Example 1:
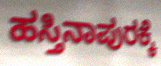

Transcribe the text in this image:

ಹಸ್ತಿನಾಪುರಕ್ಕೆ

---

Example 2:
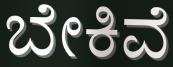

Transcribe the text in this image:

ಬೇಕಿವೆ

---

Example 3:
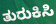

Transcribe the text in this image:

ತುರುಕಿಸಿ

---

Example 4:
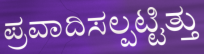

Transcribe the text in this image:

ಪ್ರವಾದಿಸಲ್ಪಟ್ಟಿತ್ತು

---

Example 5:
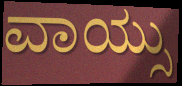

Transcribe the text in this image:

ವಾಯ್ಸು